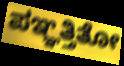
ಪಞ್ಞತ್ತಿತೋ